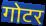
गोटर